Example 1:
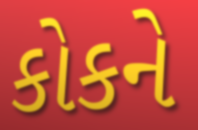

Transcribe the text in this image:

કોકને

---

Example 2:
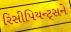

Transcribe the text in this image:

રિસીપિયન્ટ્સને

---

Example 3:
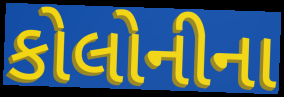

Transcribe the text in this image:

કોલોનીના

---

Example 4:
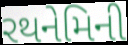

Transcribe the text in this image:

રથનેમિની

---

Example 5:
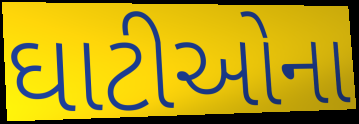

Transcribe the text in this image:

ઘાટીઓના